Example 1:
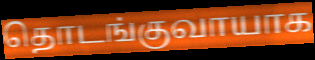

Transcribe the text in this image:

தொடங்குவாயாக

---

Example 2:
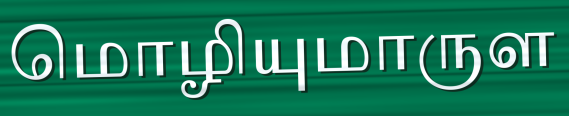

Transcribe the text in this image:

மொழியுமாருள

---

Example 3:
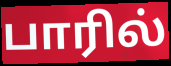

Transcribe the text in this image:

பாரில்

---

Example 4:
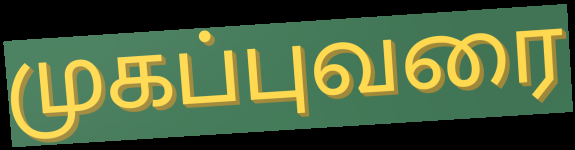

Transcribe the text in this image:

முகப்புவரை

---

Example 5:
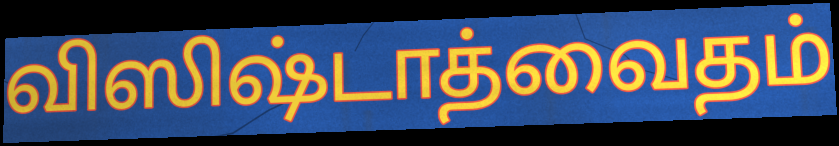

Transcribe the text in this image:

விஸிஷ்டாத்வைதம்